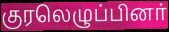
குரலெழுப்பினர்